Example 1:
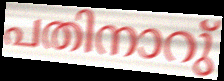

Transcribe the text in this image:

പതിനാറു്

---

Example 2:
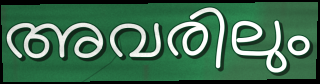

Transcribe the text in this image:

അവരിലും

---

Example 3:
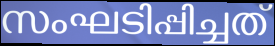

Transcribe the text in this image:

സംഘടിപ്പിച്ചത്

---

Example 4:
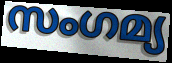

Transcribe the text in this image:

സംഗമ്യ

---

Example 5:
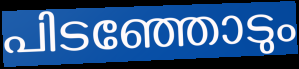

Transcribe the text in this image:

പിടഞ്ഞോടും